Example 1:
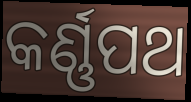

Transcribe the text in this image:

କର୍ଣ୍ଣପଥ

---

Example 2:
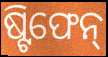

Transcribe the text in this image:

ଷ୍ଟିଫେନ୍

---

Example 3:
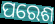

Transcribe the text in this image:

ପରେଶ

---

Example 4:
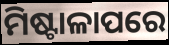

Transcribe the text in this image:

ମିଷ୍ଟାଳାପରେ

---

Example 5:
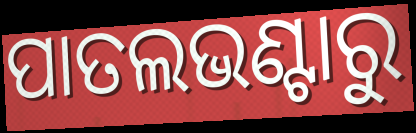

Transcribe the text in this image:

ପାତଲଭଣ୍ଟାରୁ